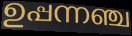
ഉപ്പന്നഞ്ച